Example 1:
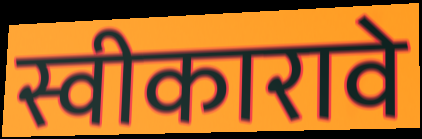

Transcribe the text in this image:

स्वीकारावे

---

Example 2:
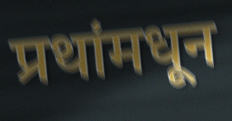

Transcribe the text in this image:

प्रथांमधून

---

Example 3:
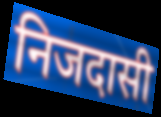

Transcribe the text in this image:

निजदासी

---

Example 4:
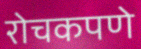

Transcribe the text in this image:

रोचकपणे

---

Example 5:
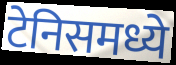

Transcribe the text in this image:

टेनिसमध्ये